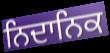
ਨਿਦਾਨਿਕ